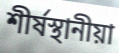
শীর্ষস্থানীয়া